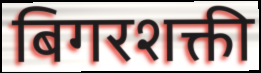
बिगरशक्ती